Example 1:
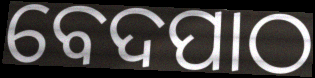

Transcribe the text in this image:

ବେଦପାଠ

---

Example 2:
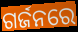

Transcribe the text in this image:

ଗର୍ଜନରେ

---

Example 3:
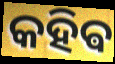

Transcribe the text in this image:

କହିଵ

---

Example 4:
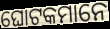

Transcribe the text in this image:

ଘୋଟକମାନେ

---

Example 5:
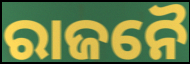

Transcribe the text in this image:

ରାଜନୈ